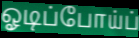
ஓடிப்போய்ப்